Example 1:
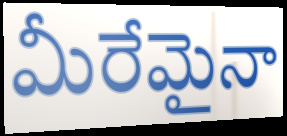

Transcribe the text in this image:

మీరేమైనా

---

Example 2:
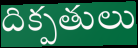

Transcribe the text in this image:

దిక్పతులు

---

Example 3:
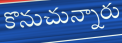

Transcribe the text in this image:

కొనుచున్నారు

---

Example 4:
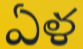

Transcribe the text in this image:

ఏళ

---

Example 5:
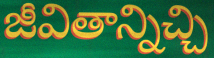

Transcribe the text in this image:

జీవితాన్నిచ్చి